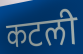
कटली